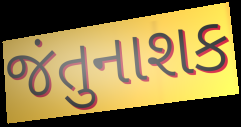
જંતુનાશક